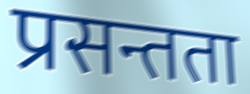
प्रसन्तता